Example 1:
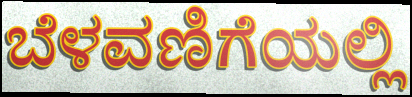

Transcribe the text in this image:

ಬೆಳವಣಿಗೆಯಲ್ಲಿ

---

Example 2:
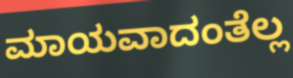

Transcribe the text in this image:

ಮಾಯವಾದಂತೆಲ್ಲ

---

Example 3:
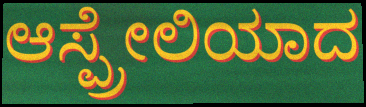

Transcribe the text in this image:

ಆಸ್ಪ್ರೇಲಿಯಾದ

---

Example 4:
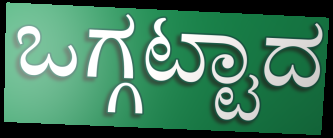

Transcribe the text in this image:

ಒಗ್ಗಟ್ಟಾದ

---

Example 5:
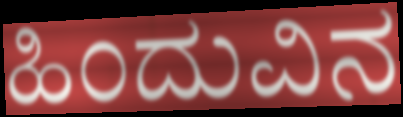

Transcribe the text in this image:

ಹಿಂದುವಿನ